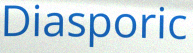
Diasporic